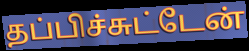
தப்பிச்சுட்டேன்